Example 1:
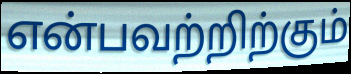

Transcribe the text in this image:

என்பவற்றிற்கும்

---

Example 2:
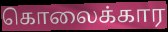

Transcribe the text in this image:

கொலைக்கார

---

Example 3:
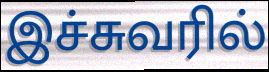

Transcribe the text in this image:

இச்சுவரில்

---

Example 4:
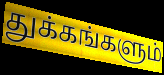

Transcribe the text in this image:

துக்கங்களும்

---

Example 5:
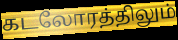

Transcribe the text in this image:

கடலோரத்திலும்